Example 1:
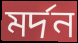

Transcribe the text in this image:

মৰ্দন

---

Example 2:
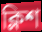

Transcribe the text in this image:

ক্লিশ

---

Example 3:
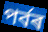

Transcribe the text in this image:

পৰ্বৰ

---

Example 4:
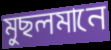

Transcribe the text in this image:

মুছলমানে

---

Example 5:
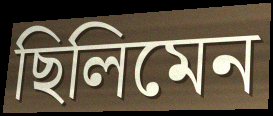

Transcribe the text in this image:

ছিলিমেন